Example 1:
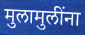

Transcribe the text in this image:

मुलामुलींना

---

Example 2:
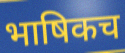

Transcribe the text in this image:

भाषिकच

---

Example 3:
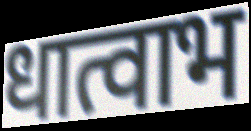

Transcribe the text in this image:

धात्वाभ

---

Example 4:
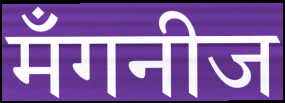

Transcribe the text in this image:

मँगनीज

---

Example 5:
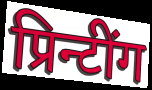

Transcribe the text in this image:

प्रिन्टींग